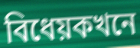
বিধেয়কখনে